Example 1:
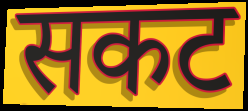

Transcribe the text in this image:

सकट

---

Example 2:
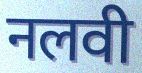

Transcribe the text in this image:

नलवी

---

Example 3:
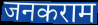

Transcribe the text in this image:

जनकराम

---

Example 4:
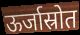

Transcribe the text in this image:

ऊर्जास्रोत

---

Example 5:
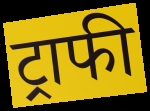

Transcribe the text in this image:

ट्राफी